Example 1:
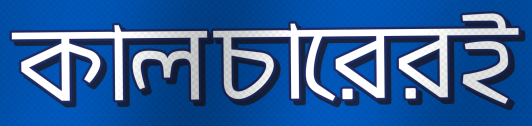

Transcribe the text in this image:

কালচারেরই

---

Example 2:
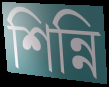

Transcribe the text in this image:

শিন্নি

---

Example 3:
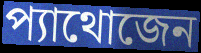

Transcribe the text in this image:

প্যাথোজেন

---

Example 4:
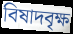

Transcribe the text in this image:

বিষাদবৃক্ষ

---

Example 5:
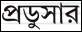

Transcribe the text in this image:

প্রডুসার